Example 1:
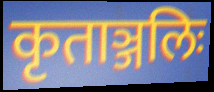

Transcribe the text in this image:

कृताञ्जलिः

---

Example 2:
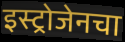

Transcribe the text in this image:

इस्ट्रोजेनचा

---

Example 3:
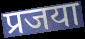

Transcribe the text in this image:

प्रजया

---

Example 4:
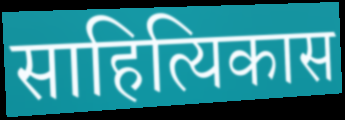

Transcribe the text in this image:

साहित्यिकास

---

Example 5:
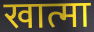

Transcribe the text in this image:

खात्मा